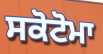
ਸਕੋਟੋਮਾ